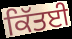
ਕਿੱਤਈ